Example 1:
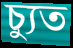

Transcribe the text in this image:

চ্যুত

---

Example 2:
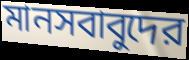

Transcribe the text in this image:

মানসবাবুদের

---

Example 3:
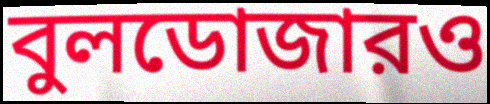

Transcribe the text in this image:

বুলডোজারও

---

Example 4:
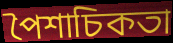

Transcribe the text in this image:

পৈশাচিকতা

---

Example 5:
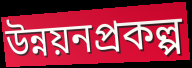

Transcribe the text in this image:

উন্নয়নপ্রকল্প